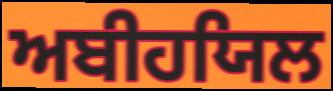
ਅਬੀਹਯਿਲ